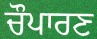
ਚੌਪਾਰਣ